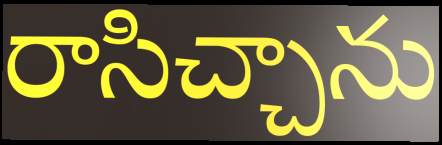
రాసిచ్చాను